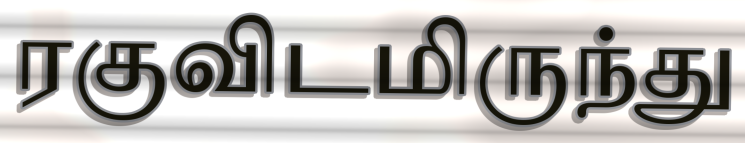
ரகுவிடமிருந்து